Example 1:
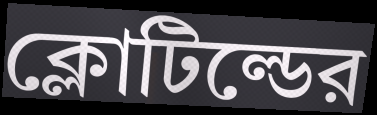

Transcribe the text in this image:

ক্লোটিল্ডের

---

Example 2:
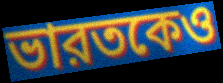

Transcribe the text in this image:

ভারতকেও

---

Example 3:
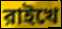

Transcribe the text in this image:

রাইখে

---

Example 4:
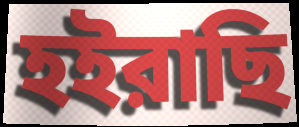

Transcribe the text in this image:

হইরাছি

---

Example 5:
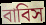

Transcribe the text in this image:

বাবিস